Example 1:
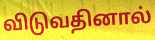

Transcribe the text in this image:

விடுவதினால்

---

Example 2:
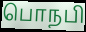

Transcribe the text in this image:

பொநபி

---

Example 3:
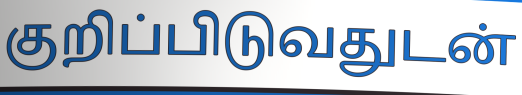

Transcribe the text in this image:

குறிப்பிடுவதுடன்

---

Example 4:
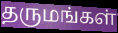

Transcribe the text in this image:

தருமங்கள்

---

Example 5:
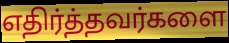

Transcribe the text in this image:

எதிர்த்தவர்களை